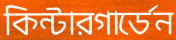
কিন্টারগার্ডেন